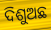
ଦିଶୁଅଛ